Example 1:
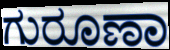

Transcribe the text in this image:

ಗುರೂಣಾ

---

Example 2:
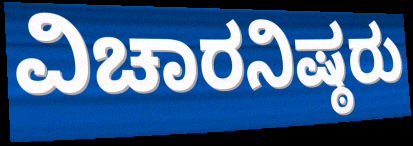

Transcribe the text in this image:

ವಿಚಾರನಿಷ್ಠರು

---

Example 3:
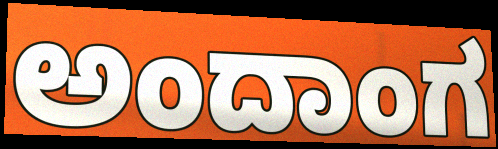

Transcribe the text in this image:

ಅಂದಾಂಗ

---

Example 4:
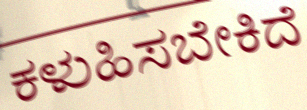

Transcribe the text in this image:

ಕಳುಹಿಸಬೇಕಿದೆ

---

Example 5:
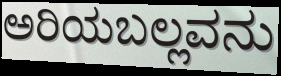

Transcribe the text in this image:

ಅರಿಯಬಲ್ಲವನು